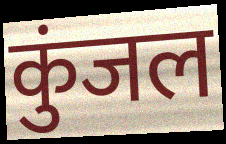
कुंजल